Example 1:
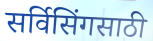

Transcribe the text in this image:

सर्विसिंगसाठी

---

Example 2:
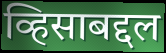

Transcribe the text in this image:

व्हिसाबद्दल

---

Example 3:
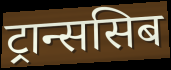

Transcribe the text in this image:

ट्रान्ससिब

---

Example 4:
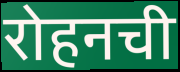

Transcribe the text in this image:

रोहनची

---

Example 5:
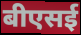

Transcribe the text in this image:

बीएसई